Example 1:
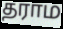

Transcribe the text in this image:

தராம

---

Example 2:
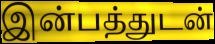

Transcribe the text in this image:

இன்பத்துடன்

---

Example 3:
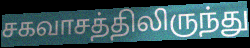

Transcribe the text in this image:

சகவாசத்திலிருந்து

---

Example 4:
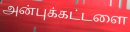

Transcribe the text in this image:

அன்புக்கட்டளை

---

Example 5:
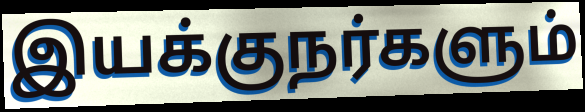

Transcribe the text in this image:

இயக்குநர்களும்